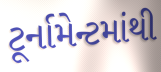
ટૂર્નામેન્ટમાંથી